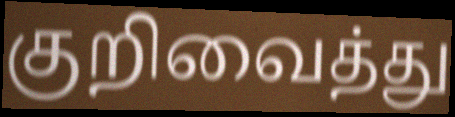
குறிவைத்து